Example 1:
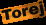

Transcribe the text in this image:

Torej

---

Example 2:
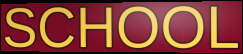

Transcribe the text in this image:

SCHOOL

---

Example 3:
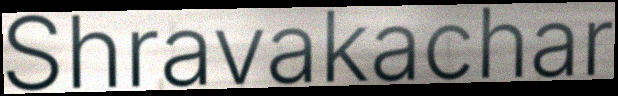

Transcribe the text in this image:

Shravakachar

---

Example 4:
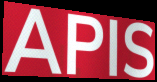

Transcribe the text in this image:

APIS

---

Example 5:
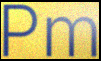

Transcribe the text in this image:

Pm